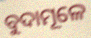
ବୁଦାମୂଳେ